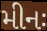
મીનઃ